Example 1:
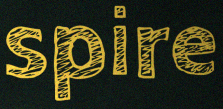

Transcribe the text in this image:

spire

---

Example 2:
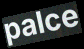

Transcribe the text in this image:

palce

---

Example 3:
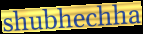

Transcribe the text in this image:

shubhechha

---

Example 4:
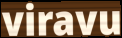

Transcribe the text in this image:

viravu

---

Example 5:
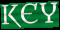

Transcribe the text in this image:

KEY